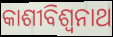
କାଶୀବିଶ୍ୱନାଥ